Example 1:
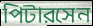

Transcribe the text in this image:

পিটারসেন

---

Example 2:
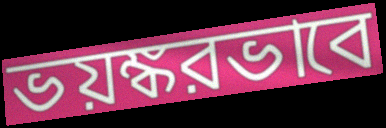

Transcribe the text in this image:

ভয়ঙ্করভাবে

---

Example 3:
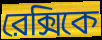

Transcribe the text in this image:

রেক্সিকে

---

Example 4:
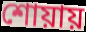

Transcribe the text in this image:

শোয়ায়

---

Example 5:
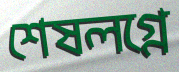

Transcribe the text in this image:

শেষলগ্নে